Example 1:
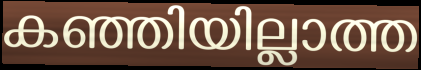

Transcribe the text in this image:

കഞ്ഞിയില്ലാത്ത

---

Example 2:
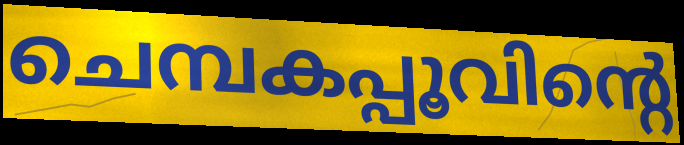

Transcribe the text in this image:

ചെമ്പകപ്പൂവിന്റെ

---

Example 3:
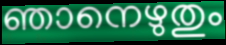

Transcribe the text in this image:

ഞാനെഴുതും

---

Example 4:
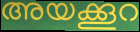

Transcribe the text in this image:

അയക്കൂറ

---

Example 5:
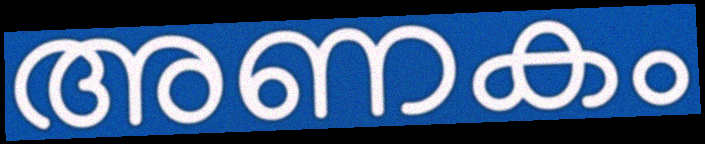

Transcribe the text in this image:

അണകം